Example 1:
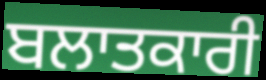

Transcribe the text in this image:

ਬਲਾਤਕਾਰੀ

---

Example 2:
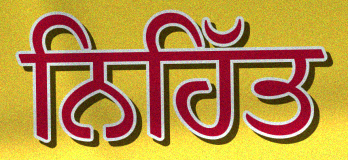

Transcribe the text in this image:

ਨਿਹਿੱਤ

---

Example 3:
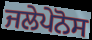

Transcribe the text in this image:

ਜਲੇਪੇਨੋਸ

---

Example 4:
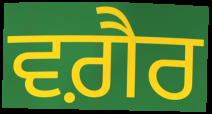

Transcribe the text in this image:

ਵਗ਼ੈਰ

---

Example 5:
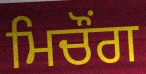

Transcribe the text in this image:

ਮਿਚੌਂਗ